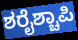
ಶರೈಶ್ಚಾಪಿ